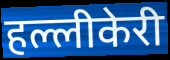
हल्लीकेरी